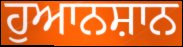
ਹੁਆਨਸ਼ਾਨ